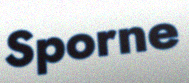
Sporne